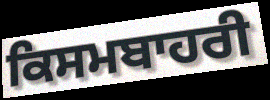
ਕਿਸਮਬਾਹਰੀ